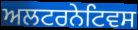
ਅਲਟਰਨੇਟਿਵਸ